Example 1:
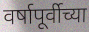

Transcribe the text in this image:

वर्षापूर्वीच्या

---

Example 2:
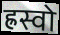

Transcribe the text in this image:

ह्रस्वो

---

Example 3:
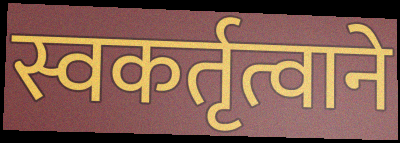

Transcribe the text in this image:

स्वकर्तृत्वाने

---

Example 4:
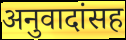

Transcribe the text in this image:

अनुवादांसह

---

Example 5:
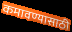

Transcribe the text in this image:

कमावण्यासाठी